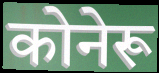
कोनेरू